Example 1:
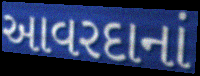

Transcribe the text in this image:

આવરદાનાં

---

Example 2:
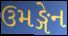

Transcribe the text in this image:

ઉમઙ્ગેન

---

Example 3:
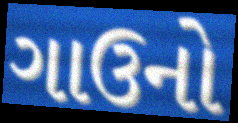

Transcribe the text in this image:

ગાઉનો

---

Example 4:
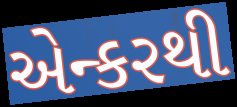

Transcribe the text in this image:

એન્કરથી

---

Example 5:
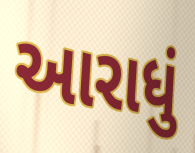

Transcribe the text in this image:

આરાધું